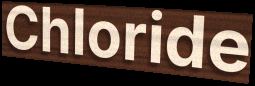
Chloride